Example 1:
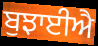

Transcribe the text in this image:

ਬੁਝਾਈਐ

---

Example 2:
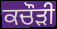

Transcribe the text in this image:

ਕਚੌੜੀ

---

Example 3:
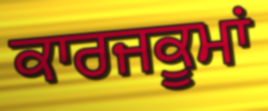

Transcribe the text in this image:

ਕਾਰਜਕੂਮਾਂ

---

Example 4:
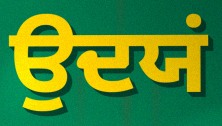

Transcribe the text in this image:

ਉਦਯਂ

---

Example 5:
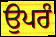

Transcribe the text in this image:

ਉਪਰੰ